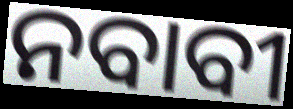
ନବାବୀ